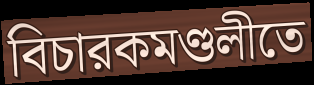
বিচারকমণ্ডলীতে